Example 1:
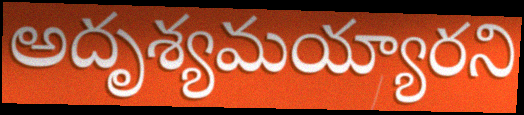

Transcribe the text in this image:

అదృశ్యమయ్యారని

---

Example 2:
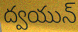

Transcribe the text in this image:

ద్వయున్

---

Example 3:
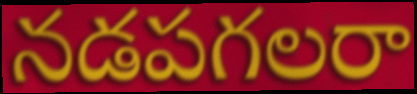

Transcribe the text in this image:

నడపగలరా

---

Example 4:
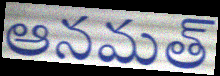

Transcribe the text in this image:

ఆనమత్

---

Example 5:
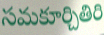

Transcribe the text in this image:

సమకూర్చితిరి